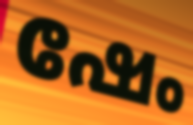
ഷേം